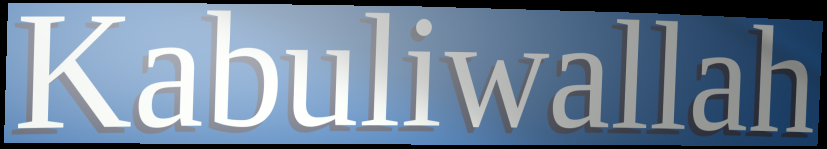
Kabuliwallah